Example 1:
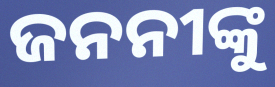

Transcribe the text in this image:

ଜନନୀଙ୍କୁ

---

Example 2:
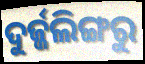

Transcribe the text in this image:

ଦୁର୍ଜ୍ଜଲିଙ୍ଗରୁ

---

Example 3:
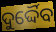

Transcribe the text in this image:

ଦୁର୍ଦ୍ଦୈବ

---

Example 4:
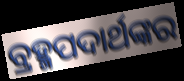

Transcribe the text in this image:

ବ୍ରହ୍ମପଦାର୍ଥଙ୍କର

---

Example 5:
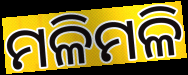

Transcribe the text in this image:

ମଳିମଳି